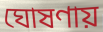
ঘোষণায়